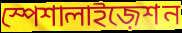
স্পেশালাইজ়েশন